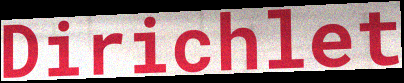
Dirichlet